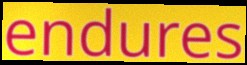
endures